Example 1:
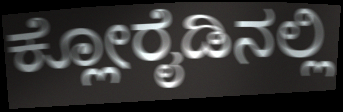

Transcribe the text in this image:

ಕ್ಲೋರೈಡಿನಲ್ಲಿ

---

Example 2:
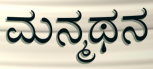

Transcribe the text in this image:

ಮನ್ಮಥನ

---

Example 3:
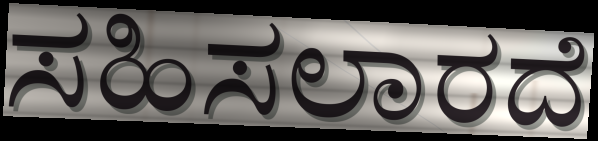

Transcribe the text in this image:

ಸಹಿಸಲಾರದೆ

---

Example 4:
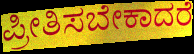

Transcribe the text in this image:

ಪ್ರೀತಿಸಬೇಕಾದರೆ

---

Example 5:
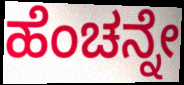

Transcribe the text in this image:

ಹೆಂಚನ್ನೇ